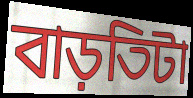
বাড়তিটা